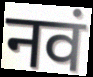
नवं